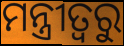
ମନ୍ତ୍ରୀତ୍ୱରୁ